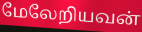
மேலேறியவன்